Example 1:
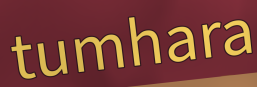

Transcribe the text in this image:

tumhara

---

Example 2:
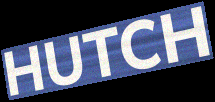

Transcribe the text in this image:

HUTCH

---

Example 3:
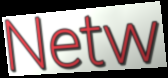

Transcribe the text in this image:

Netw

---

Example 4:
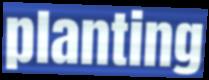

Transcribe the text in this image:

planting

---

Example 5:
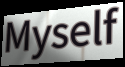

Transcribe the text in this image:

Myself